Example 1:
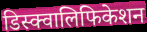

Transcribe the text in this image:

डिस्क्वालिफिकेशन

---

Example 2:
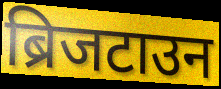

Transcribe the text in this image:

ब्रिजटाउन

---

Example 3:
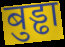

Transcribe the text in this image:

बुड्ढा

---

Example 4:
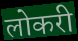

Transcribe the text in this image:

लोकरी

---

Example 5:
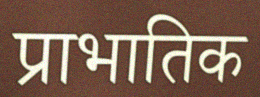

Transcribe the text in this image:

प्राभातिक